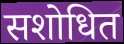
सशोधित